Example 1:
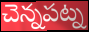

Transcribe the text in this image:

చెన్నపట్న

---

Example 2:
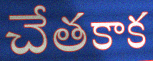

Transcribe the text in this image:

చేతకాక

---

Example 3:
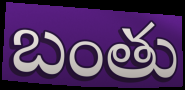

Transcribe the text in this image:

బంతు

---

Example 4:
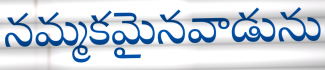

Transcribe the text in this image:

నమ్మకమైనవాడును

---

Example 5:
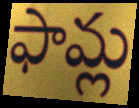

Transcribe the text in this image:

ఫామ్ల